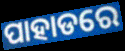
ପାହାଡରେ